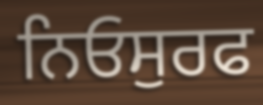
ਨਿਓਸੁਰਫ